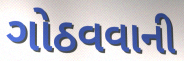
ગોઠવવાની